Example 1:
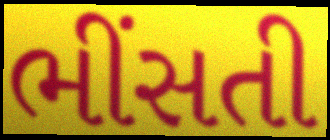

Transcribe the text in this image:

ભીંસતી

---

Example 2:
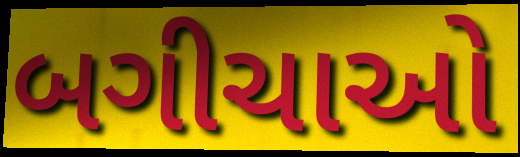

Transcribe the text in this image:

બગીચાઓ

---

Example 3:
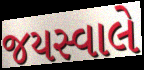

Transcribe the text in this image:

જયસ્વાલે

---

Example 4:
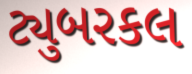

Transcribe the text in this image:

ટ્યુબરકલ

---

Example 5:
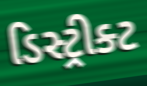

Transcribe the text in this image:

ડિસ્ટ્રીક્ટ